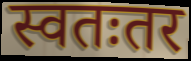
स्वतःतर